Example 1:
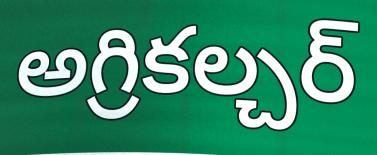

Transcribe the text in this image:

అగ్రికల్చర్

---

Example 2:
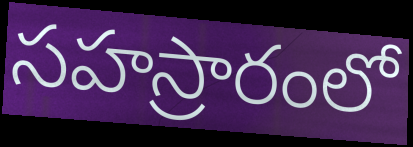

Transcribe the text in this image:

సహస్రారంలో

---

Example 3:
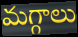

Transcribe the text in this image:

మగ్గాలు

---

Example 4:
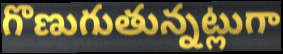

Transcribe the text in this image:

గొణుగుతున్నట్లుగా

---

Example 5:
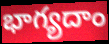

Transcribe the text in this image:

భాగ్యదాం